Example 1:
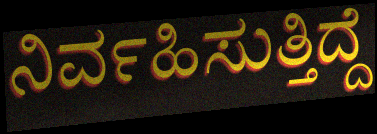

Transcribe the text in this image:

ನಿರ್ವಹಿಸುತ್ತಿದ್ದೆ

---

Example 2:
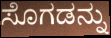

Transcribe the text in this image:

ಸೊಗಡನ್ನು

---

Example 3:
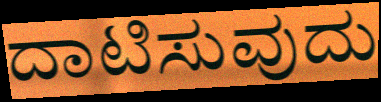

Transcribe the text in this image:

ದಾಟಿಸುವುದು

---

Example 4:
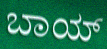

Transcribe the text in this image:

ಬಾಯ್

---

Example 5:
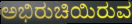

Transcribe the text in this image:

ಅಭಿರುಚಿಯಿರುವ